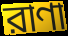
রাণা